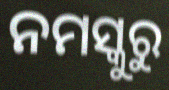
ନମସ୍କୁରୁ